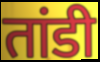
तांडी